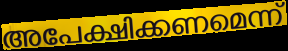
അപേക്ഷിക്കണമെന്ന്